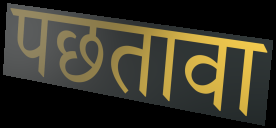
पछतावा